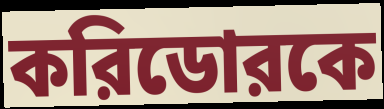
করিডোরকে